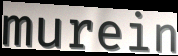
murein